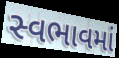
સ્વભાવમાં